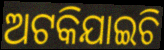
ଅଟକିଯାଇଚି